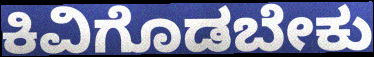
ಕಿವಿಗೊಡಬೇಕು